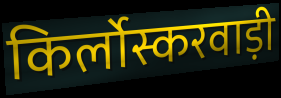
किर्लोस्करवाड़ी